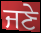
ਜਣੇ